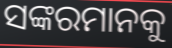
ସଙ୍କରମାନକୁ